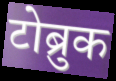
टोब्रुक